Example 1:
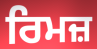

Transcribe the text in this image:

ਰਿਮਜ਼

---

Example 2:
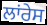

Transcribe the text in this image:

ਲਾਂਰੇਸ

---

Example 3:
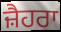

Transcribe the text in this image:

ਜ਼ੈਹਰਾ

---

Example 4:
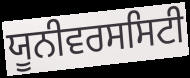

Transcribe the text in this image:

ਯੂਨੀਵਰਸਸਿਟੀ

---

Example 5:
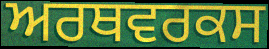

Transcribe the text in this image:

ਅਰਥਵਰਕਸ